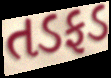
તડફડ